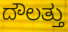
ದೌಲತ್ತು